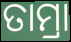
ତାମ୍ରା